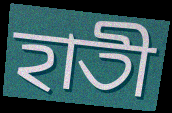
হাতী